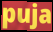
puja